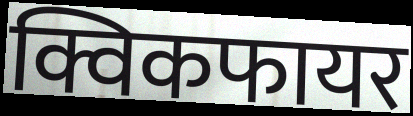
क्विकफायर